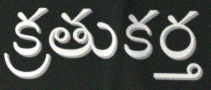
క్రతుకర్త